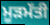
ਮੂੜਮੱਤੀ